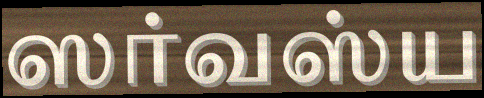
ஸர்வஸ்ய